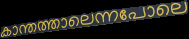
കാന്തത്താലെന്നപോലെ